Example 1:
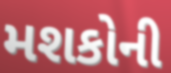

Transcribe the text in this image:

મશકોની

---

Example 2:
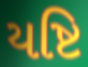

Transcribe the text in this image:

યષ્ટિ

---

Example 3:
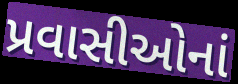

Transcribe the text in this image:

પ્રવાસીઓનાં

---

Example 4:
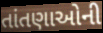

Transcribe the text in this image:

તાંતણાઓની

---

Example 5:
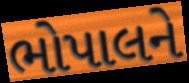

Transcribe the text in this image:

ભોપાલને